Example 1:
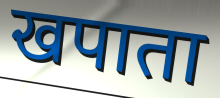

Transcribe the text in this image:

खपाता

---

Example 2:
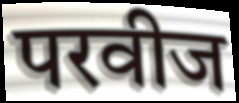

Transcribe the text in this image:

परवीज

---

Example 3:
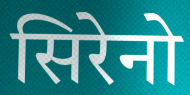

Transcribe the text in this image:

सिरेनो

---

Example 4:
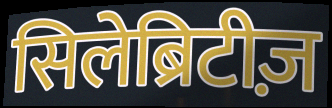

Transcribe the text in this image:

सिलेब्रिटीज़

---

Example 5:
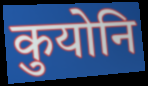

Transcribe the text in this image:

कुयोनि